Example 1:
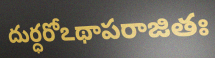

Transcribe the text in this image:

దుర్ధరోఽథాపరాజితః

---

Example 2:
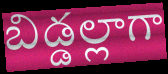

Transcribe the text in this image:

బిడ్డల్లాగా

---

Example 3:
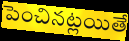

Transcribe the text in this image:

పెంచినట్లయితే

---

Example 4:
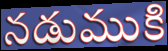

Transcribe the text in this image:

నడుముకి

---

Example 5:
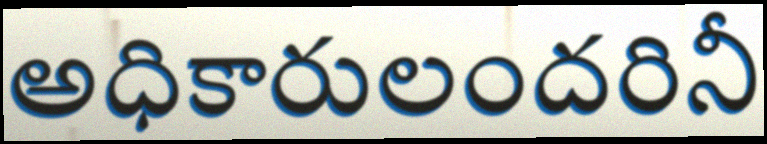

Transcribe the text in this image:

అధికారులందరినీ